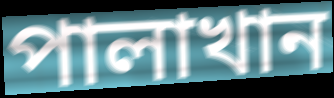
পালাখান